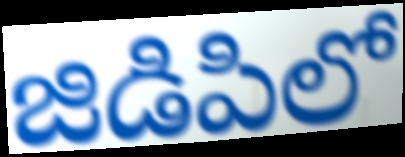
జిడిపిలో